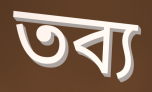
তব্য